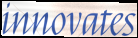
innovates